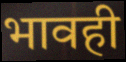
भावही